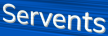
Servents